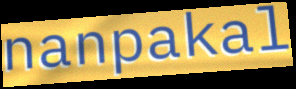
nanpakal